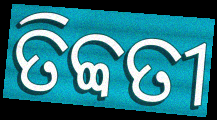
ତିବ୍ବତୀ